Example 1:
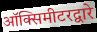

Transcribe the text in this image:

ऑक्सिमीटरद्वारे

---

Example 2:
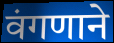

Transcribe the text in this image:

वंगणाने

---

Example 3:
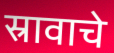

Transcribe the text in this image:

स्रावाचे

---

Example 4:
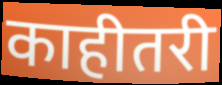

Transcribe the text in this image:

काहीतरी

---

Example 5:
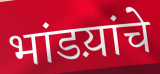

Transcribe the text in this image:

भांडय़ांचे